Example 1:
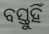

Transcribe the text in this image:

ବସ୍ତୁହିଁ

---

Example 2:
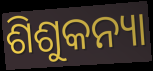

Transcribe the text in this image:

ଶିଶୁକନ୍ୟା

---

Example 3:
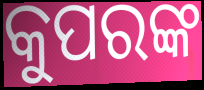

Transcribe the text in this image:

କୁପରଙ୍କ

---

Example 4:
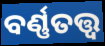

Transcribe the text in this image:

ବର୍ଣ୍ଣତତ୍ତ୍ଵ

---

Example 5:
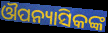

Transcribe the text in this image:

ଔପନ୍ୟାସିକଙ୍କ